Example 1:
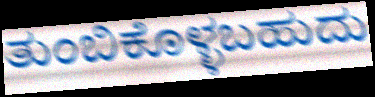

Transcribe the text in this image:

ತುಂಬಿಕೊಳ್ಳಬಹುದು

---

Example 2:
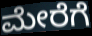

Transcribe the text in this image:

ಮೇರೆಗೆ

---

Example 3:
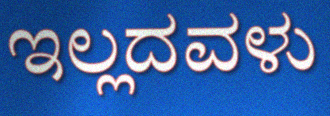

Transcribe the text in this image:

ಇಲ್ಲದವಳು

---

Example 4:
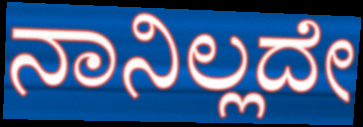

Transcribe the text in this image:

ನಾನಿಲ್ಲದೇ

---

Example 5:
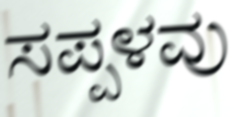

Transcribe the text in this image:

ಸಪ್ಪಳವು